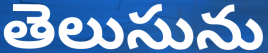
తెలుసును